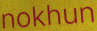
nokhun